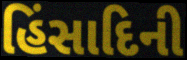
હિંસાદિની